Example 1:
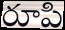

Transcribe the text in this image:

రూపి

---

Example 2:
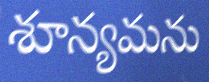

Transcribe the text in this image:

శూన్యమను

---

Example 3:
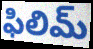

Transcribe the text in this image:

ఫిలిమ్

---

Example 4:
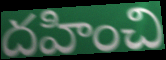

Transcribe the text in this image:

దహించి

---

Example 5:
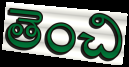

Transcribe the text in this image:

తెంచి